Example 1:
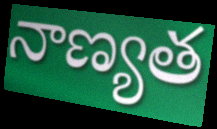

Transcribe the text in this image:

నాణ్యత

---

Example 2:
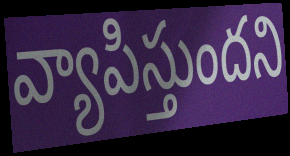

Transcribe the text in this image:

వ్యాపిస్తుందని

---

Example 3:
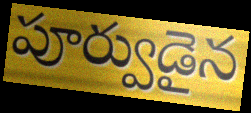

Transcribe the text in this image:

పూర్వుడైన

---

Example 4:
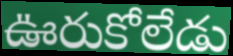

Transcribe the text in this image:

ఊరుకోలేడు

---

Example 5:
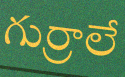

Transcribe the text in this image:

గుర్రాలే